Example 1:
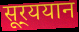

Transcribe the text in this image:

सूर्ययान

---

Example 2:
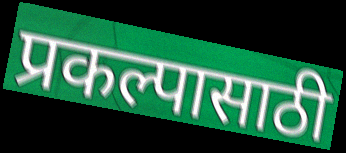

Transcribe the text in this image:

प्रकल्पासाठी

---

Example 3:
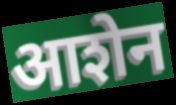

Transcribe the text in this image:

आशेन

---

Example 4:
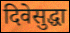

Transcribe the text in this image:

दिवेसुद्धा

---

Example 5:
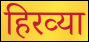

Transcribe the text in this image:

हिरव्‍या